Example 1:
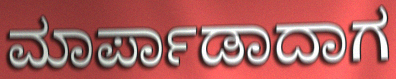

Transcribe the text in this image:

ಮಾರ್ಪಾಡಾದಾಗ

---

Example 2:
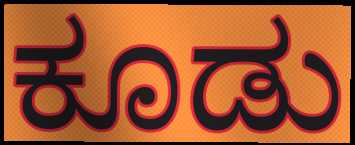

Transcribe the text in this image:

ಕೂಡು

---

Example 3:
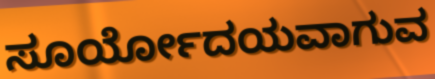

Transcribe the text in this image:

ಸೂರ್ಯೋದಯವಾಗುವ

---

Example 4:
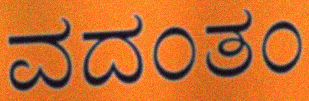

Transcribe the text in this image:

ವದಂತಂ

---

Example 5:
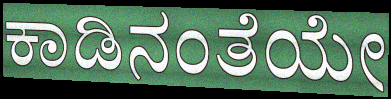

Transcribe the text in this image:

ಕಾಡಿನಂತೆಯೇ